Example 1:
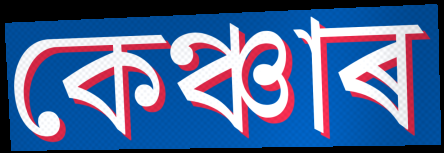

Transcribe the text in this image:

কেঞ্চাৰ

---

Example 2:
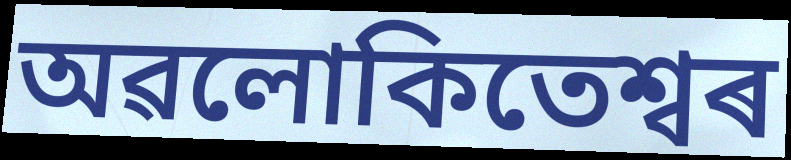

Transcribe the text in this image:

অৱলোকিতেশ্বৰ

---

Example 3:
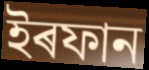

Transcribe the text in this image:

ইৰফান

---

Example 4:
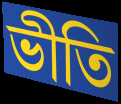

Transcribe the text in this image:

ভীতি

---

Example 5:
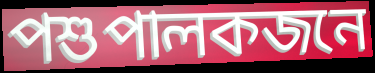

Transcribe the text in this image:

পশুপালকজনে